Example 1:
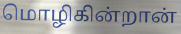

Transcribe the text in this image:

மொழிகின்றான்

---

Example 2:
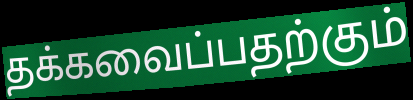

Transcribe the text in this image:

தக்கவைப்பதற்கும்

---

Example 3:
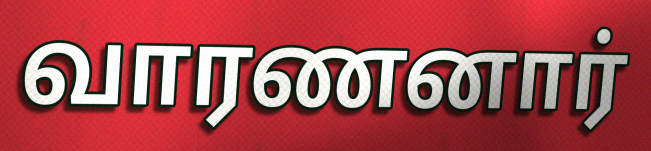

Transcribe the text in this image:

வாரணனார்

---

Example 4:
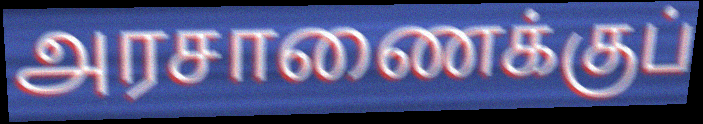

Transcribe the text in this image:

அரசாணைக்குப்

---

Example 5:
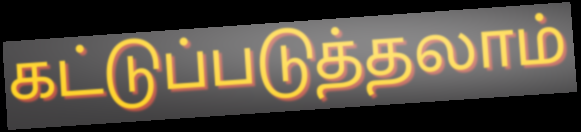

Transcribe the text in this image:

கட்டுப்படுத்தலாம்